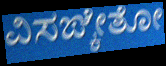
ವಿಸಙ್ಕೇತೋ